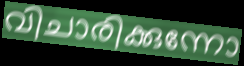
വിചാരിക്കുന്നോ